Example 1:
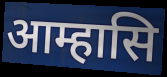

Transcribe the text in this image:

आम्हासि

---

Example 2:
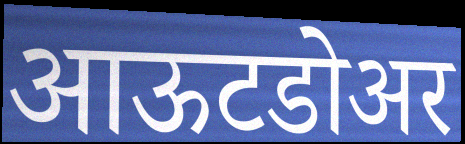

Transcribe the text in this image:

आऊटडोअर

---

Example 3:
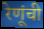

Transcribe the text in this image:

रेणूंची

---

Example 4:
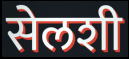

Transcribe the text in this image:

सेलशी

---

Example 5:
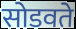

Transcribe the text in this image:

सोडवते